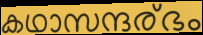
കഥാസന്ദര്ഭം